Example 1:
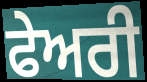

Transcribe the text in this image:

ਫੇਅਰੀ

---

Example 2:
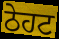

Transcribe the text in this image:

ਠੇਹਟ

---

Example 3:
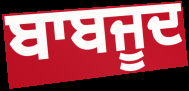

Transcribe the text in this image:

ਬਾਬਜੂਦ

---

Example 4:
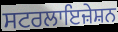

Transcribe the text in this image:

ਸਟਰਲਾਇਜ਼ੇਸ਼ਨ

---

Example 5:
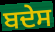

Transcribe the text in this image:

ਬਦੇਸ